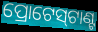
ପ୍ରୋଟେସ୍‌ଟାଣ୍ଟ